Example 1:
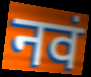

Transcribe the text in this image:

नवं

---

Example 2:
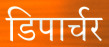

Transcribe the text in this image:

डिपार्चर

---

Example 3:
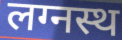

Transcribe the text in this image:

लग्नस्थ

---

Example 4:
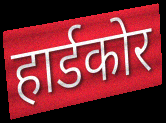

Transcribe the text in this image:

हार्डकोर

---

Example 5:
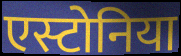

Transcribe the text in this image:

एस्‍टोनिया